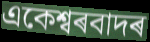
একেশ্বৰবাদৰ